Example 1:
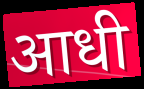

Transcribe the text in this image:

आधी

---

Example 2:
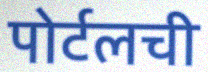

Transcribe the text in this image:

पोर्टलची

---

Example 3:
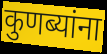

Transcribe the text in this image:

कुणब्यांना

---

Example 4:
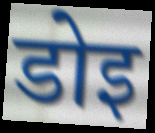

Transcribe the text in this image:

डोइ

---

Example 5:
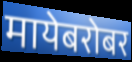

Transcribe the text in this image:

मायेबरोबर